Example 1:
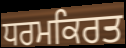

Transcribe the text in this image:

ਧਰਮਕਿਰਤ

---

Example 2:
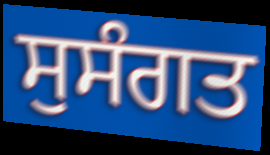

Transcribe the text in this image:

ਸੁਸੰਗਤ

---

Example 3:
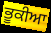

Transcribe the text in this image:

ਭੂਕੀਆ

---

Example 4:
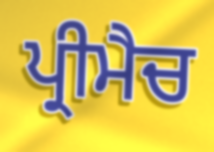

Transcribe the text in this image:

ਪ੍ਰੀਮੈਚ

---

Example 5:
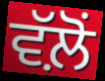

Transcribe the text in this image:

ਵੱਲ਼ੋਂ